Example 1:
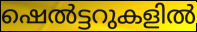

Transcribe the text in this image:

ഷെൽട്ടറുകളിൽ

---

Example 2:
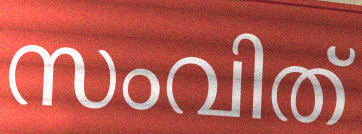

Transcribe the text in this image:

സംവിത്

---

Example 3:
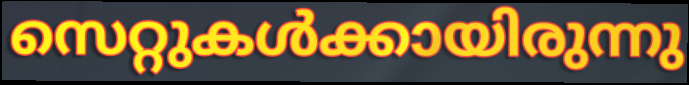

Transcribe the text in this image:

സെറ്റുകൾക്കായിരുന്നു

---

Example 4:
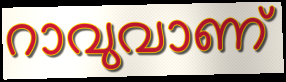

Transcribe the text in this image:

റാവുവാണ്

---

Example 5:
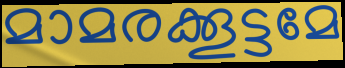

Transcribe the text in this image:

മാമരക്കൂട്ടമേ